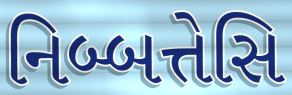
નિબ્બત્તેસિ